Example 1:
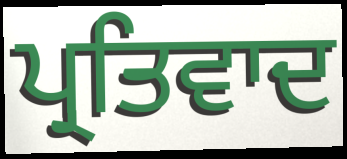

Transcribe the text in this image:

ਪ੍ਰਤਿਵਾਦ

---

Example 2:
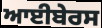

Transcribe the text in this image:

ਆਈਬੇਰਸ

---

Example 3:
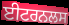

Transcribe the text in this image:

ਈਟਰਨਲਸ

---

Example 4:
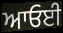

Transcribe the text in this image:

ਆਓਈ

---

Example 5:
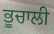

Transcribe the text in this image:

ਭੂਚਾਲੀ